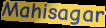
Mahisagar